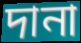
দানা